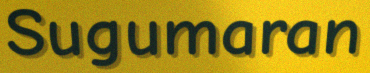
Sugumaran